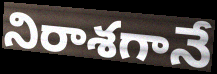
నిరాశగానే